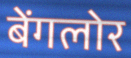
बेंगलोर